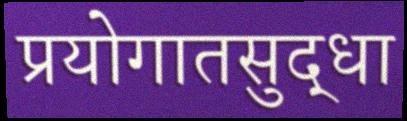
प्रयोगातसुद्धा